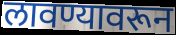
लावण्यावरून